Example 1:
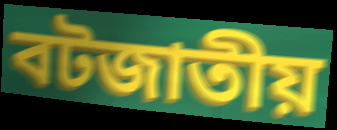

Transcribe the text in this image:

বটজাতীয়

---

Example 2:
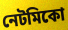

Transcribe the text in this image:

নেটমিকো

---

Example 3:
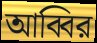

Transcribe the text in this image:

আব্বির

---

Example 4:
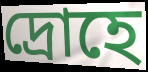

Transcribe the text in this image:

দ্রোহে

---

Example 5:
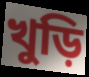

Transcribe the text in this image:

খুড়ি